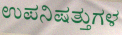
ಉಪನಿಷತ್ತುಗಳ